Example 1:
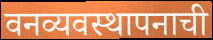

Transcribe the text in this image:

वनव्यवस्थापनाची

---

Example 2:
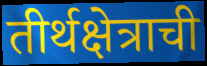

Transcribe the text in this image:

तीर्थक्षेत्राची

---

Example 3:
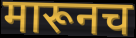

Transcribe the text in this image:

मारूनच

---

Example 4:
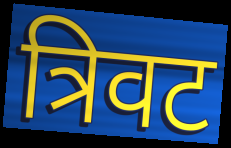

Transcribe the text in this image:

त्रिवट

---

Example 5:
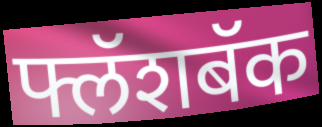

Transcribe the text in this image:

फ्लॅशबॅक